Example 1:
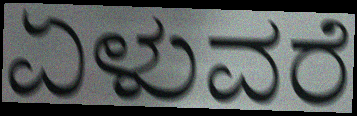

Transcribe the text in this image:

ಏಳುವರೆ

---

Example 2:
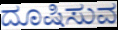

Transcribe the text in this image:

ದೂಷಿಸುವ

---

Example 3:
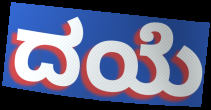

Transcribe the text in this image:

ದಯೆ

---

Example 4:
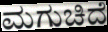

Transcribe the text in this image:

ಮಗುಚಿದೆ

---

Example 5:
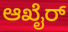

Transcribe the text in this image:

ಆಖೈರ್